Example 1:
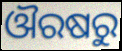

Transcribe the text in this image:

ଔରଷରୁ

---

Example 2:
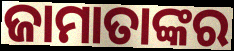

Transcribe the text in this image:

ଜାମାତାଙ୍କର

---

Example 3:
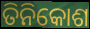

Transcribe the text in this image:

ତିନିକୋଶ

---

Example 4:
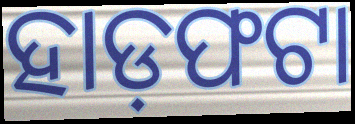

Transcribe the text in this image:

ହାଡ଼ଫଟା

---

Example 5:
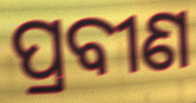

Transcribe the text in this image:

ପ୍ରବୀଣ